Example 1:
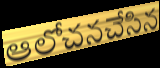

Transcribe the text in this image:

ఆలోచనచేసిన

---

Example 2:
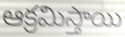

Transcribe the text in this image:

ఆక్రమిస్తాయి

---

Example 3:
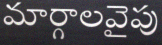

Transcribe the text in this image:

మార్గాలవైపు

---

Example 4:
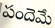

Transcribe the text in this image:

పందెమే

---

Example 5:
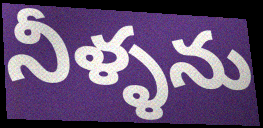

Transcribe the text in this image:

నీళ్ళను